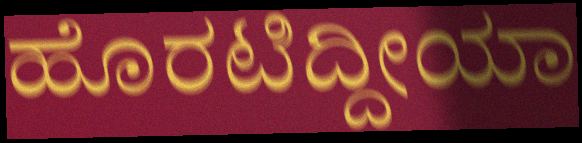
ಹೊರಟಿದ್ದೀಯಾ